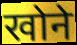
खोने